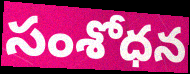
సంశోధన